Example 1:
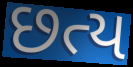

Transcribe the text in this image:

છત્ય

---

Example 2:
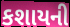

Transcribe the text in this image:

કશાયની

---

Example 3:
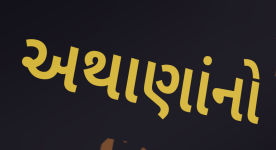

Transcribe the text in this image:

અથાણાંનો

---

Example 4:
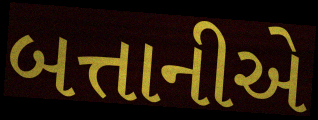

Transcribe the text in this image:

બત્તાનીએ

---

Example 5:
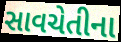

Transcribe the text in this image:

સાવચેતીના